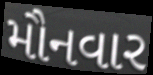
મૌનવાર